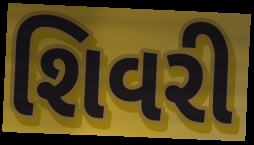
શિવરી